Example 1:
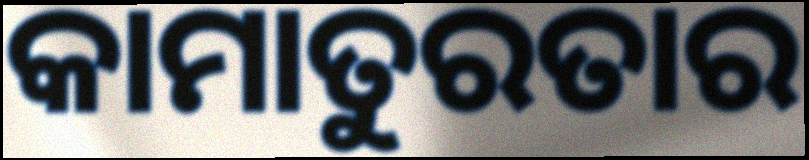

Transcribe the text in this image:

କାମାତୁରତାର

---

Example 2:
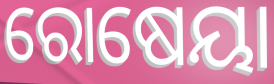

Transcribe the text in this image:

ରୋଷେୟା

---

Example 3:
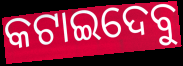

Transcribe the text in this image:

କଟାଇଦେବୁ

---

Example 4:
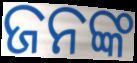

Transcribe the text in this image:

ଜନଙ୍କ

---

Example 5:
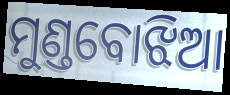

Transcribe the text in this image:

ମୁଣ୍ଡବୋଝିଆ